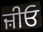
ਜ਼ੀਓ